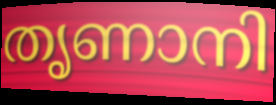
തൃണാനി